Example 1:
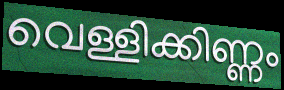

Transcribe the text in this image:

വെള്ളിക്കിണ്ണം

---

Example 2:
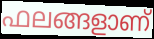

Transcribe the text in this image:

ഫലങ്ങളാണ്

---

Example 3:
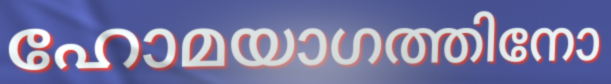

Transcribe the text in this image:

ഹോമയാഗത്തിനോ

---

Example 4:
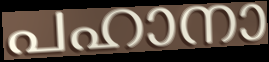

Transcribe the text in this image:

പഹാനാ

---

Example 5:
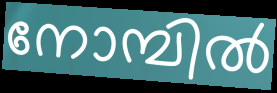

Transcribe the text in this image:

നോമ്പിൽ